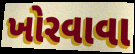
ખોરવાવા